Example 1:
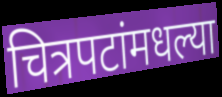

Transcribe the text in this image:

चित्रपटांमधल्या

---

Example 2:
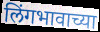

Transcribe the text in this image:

लिंगभावाच्या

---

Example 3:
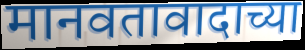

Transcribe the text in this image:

मानवतावादाच्या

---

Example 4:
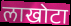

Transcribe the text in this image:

लाखोटा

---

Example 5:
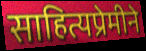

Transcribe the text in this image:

साहित्यप्रेमीने